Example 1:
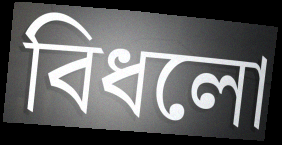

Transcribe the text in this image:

বিধলো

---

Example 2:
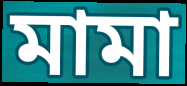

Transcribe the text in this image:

মামা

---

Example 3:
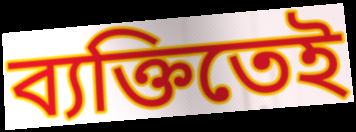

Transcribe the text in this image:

ব্যক্তিতেই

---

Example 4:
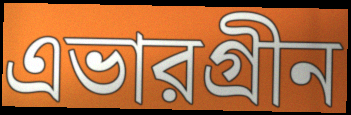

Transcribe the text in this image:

এভারগ্রীন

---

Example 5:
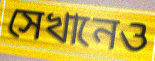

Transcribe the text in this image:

সেখানেও